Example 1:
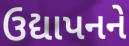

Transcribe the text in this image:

ઉદ્યાપનને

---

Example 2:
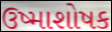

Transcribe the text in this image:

ઉષ્માશોષક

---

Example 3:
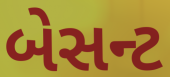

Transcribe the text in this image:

બેસન્ટ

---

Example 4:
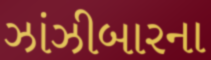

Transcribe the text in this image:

ઝાંઝીબારના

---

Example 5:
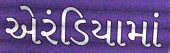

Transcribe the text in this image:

એરંડિયામાં